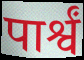
पार्श्वं